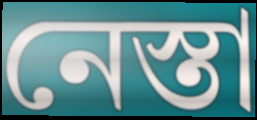
নেস্তা